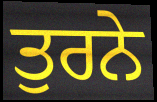
ਤੁਰਨੇ